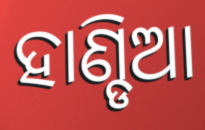
ହାଣ୍ଡିଆ